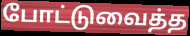
போட்டுவைத்த